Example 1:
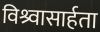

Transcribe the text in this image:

विश्र्वासार्हता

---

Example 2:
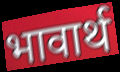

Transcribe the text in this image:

भावार्थ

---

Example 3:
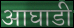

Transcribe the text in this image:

आघाडी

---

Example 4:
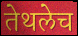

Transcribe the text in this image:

तेथलेच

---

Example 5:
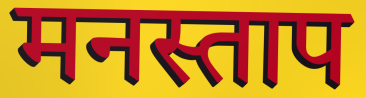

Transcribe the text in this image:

मनस्ताप